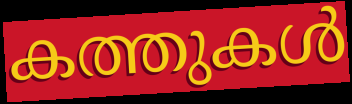
കത്തുകൾ